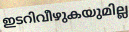
ഇടറിവീഴുകയുമില്ല